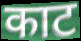
काट